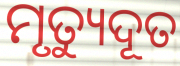
ମୃତ୍ୟୁଦୂତ